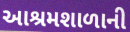
આશ્રમશાળાની